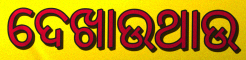
ଦେଖାଉଥାଉ